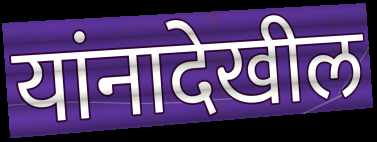
यांनादेखील